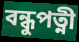
বন্ধুপত্নী